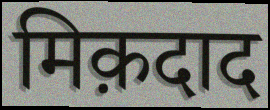
मिक़दाद